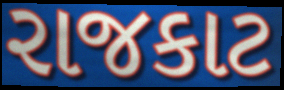
રાજકાટ